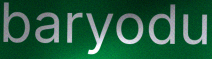
baryodu